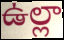
ఉల్లా